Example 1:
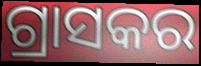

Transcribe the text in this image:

ଗ୍ରାସକର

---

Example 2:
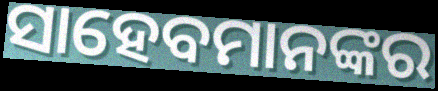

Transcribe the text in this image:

ସାହେବମାନଙ୍କର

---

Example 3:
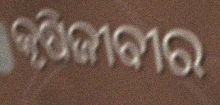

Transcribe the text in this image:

କୃଷିଜୀବୀର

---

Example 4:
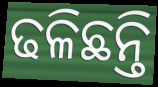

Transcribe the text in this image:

ଢଳିଛନ୍ତି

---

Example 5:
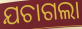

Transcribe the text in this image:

ଯଚାଗଲା